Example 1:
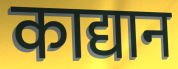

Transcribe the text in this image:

काद्यान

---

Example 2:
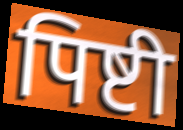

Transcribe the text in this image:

पिष्टी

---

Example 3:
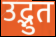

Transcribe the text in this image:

उद्भुत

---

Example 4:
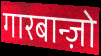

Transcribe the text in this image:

गारबान्ज़ो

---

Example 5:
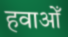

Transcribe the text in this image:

हवाओँ